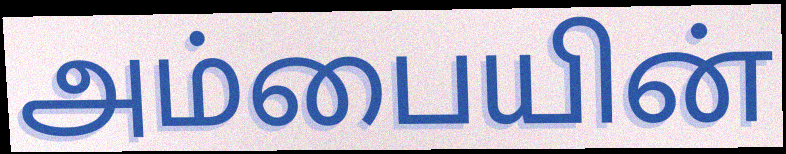
அம்பையின்